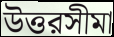
উত্তরসীমা